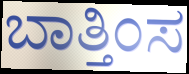
ಬಾತ್ತಿಂಸ